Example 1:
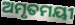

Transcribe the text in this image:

ଅମୃତମୟୀ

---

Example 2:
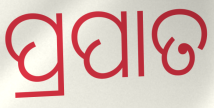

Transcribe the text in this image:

ପ୍ରପାତ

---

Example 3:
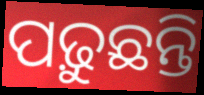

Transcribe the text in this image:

ପଢ଼ୁଛନ୍ତି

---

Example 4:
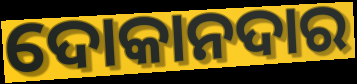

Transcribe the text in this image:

ଦୋକାନଦାର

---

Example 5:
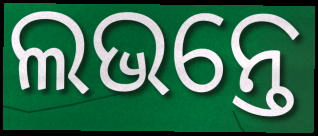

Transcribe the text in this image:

ଲଭନ୍ତେ